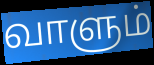
வாளும்